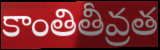
కాంతితీవ్రత